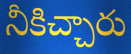
నీకిచ్చారు